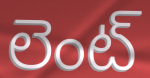
లెంట్